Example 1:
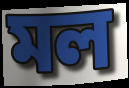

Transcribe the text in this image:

মল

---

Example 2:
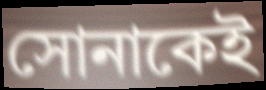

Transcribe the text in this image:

সোনাকেই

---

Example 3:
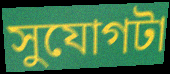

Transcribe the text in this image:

সুযোগটা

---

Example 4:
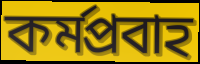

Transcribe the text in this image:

কর্মপ্রবাহ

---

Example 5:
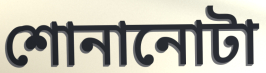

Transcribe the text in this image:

শোনানোটা